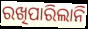
ରଖିପାରିଲାନି